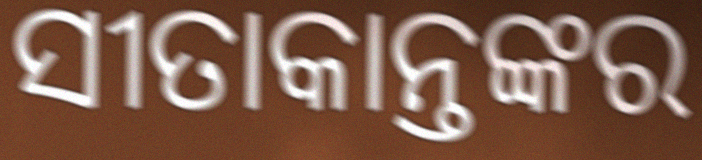
ସୀତାକାନ୍ତଙ୍କର